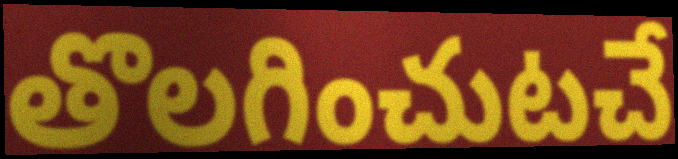
తొలగించుటచే